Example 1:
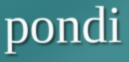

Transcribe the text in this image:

pondi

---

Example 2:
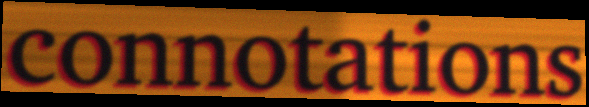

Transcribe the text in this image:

connotations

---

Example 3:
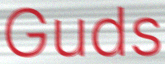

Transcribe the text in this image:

Guds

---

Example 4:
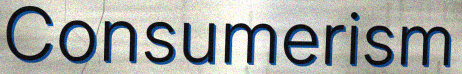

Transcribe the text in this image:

Consumerism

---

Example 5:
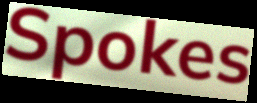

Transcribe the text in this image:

Spokes